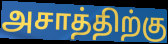
அசாத்திற்கு